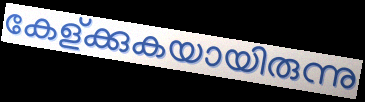
കേള്ക്കുകയായിരുന്നു